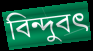
বিন্দুবৎ